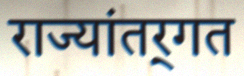
राज्यांतर्गत